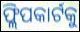
ଫ୍ଲିପକାର୍ଟକୁ